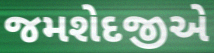
જમશેદજીએ